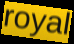
royal